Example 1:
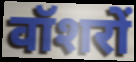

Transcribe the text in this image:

वॉशरों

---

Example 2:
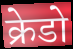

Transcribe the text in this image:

क्रेडो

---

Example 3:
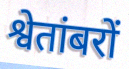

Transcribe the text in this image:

श्वेतांबरों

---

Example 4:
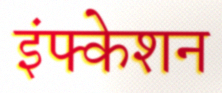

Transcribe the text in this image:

इंफ्केशन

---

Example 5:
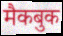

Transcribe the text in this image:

मैकबुक